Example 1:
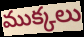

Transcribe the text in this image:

ముక్కలు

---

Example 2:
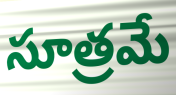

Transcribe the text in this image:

సూత్రమే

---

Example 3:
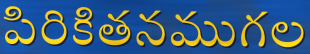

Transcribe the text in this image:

పిరికితనముగల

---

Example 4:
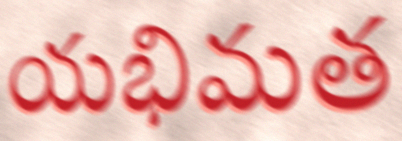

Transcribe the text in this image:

యభిమత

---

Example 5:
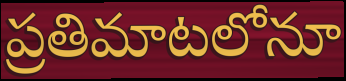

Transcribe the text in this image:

ప్రతిమాటలోనూ